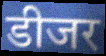
डीजर